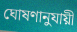
ঘোষণানুযায়ী